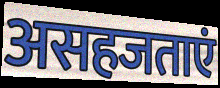
असहजताएं